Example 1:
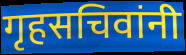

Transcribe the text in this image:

गृहसचिवांनी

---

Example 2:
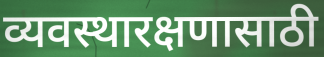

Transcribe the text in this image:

व्यवस्थारक्षणासाठी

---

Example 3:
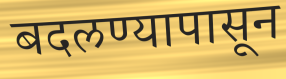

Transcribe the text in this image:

बदलण्यापासून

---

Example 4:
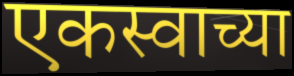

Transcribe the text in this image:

एकस्वाच्या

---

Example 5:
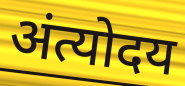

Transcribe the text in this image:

अंत्योदय